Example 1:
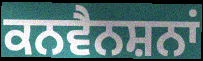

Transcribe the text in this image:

ਕਨਵੈਨਸ਼ਨਾਂ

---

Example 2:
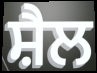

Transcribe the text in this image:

ਸ਼ੈਲ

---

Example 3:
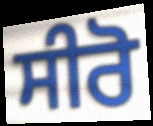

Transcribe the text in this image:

ਸੀਰੋ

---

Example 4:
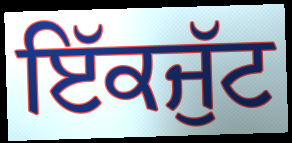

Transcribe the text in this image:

ਇੱਕਜੁੱਟ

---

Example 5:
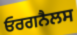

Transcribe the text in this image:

ਓਰਗਨੈਲਸ